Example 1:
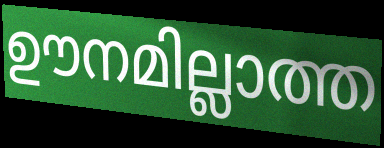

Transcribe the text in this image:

ഊനമില്ലാത്ത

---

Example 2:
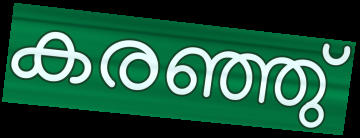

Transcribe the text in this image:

കരഞ്ഞു്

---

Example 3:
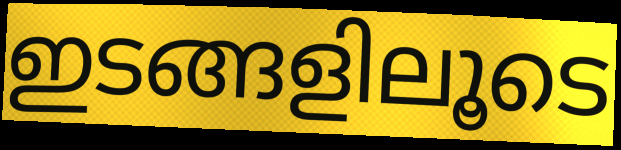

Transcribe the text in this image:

ഇടങ്ങളിലൂടെ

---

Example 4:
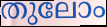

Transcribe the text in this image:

തുലോം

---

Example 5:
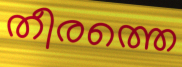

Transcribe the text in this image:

തീരത്തെ